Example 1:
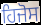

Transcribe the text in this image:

ਹਿਜੋਸ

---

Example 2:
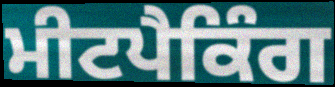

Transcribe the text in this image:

ਮੀਟਪੈਕਿੰਗ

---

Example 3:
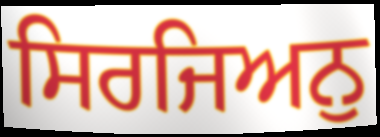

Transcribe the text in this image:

ਸਿਰਜਿਅਨੁ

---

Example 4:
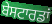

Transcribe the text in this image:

ਬੇਸਟਾਰਡਾਂ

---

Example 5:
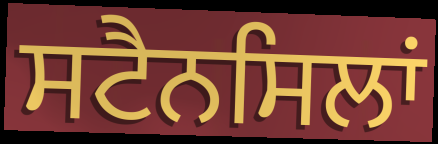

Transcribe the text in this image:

ਸਟੈਨਸਿਲਾਂ